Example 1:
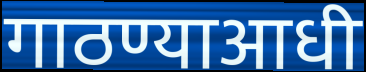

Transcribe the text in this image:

गाठण्याआधी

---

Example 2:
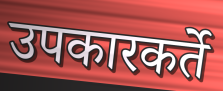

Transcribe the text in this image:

उपकारकर्ते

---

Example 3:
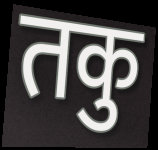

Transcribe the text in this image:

तकु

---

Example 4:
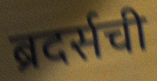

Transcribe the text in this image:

ब्रदर्सची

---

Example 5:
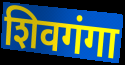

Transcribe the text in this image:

शिवगंगा